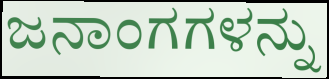
ಜನಾಂಗಗಳನ್ನು